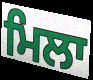
ਮਿਲਾ